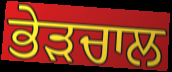
ਭੇੜਚਾਲ